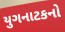
યુગનાટકનો